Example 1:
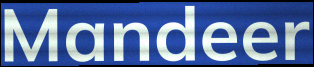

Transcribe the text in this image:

Mandeer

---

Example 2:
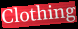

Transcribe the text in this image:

Clothing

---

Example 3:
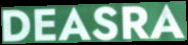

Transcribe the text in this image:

DEASRA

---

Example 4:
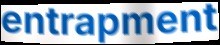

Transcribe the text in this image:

entrapment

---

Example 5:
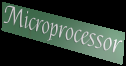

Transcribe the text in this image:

Microprocessor